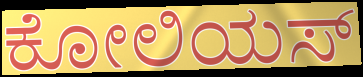
ಕೋಲಿಯಸ್